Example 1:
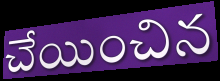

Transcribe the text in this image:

చేయించిన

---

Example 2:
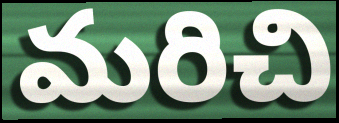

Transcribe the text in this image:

మరిచి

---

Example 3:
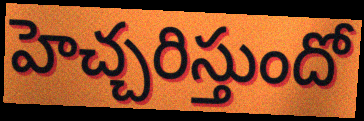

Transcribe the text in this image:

హెచ్చరిస్తుందో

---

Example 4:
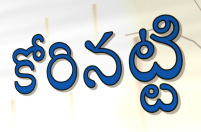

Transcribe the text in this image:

కోరినట్టి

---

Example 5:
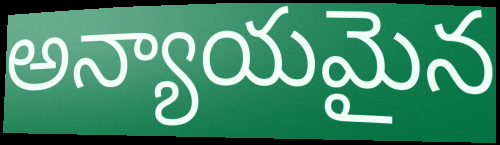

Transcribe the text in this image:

అన్యాయమైన